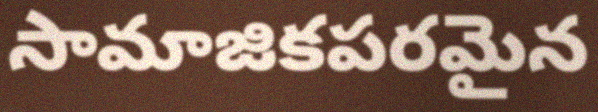
సామాజికపరమైన